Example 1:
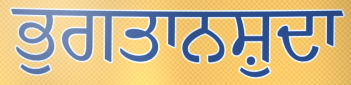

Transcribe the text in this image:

ਭੁਗਤਾਨਸ਼ੁਦਾ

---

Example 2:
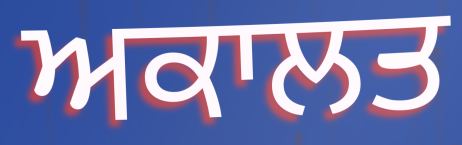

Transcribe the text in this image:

ਅਕਾਲਤ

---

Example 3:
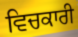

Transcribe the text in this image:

ਵਿਚਕਾਰੀ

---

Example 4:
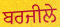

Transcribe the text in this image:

ਬਰਜੀਲੇ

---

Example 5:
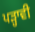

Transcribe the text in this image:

ਪੜ੍ਹਾਵੀ